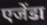
एजेंडा